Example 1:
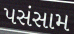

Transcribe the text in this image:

પસંસામ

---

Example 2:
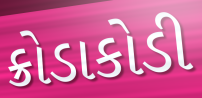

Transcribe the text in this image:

ક્રોડાકોડી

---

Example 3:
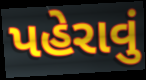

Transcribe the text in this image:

પહેરાવું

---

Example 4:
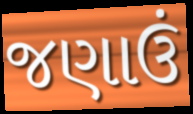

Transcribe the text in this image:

જણાઉં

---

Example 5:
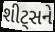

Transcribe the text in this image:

શીટ્સને